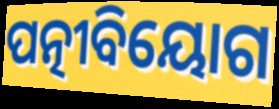
ପତ୍ନୀବିୟୋଗ